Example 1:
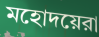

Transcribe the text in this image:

মহোদয়েরা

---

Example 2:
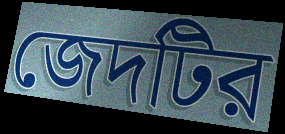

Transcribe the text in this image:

জেদটির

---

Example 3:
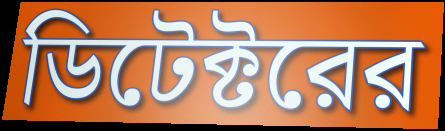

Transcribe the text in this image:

ডিটেক্টরের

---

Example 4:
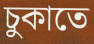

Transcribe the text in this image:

চুকাতে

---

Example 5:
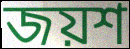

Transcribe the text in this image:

জয়শ